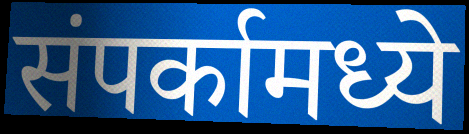
संपर्कामध्ये